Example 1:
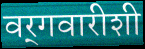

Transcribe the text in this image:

वर्गवारीशी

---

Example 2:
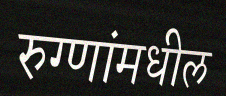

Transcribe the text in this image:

रुग्णांमधील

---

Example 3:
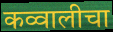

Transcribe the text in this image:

कव्वालीचा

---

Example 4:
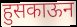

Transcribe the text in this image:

हुसकाऊन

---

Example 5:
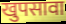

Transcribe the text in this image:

खुपसावा